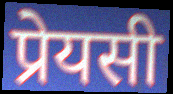
प्रेयसी